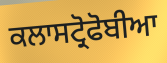
ਕਲਾਸਟ੍ਰੋਫੋਬੀਆ